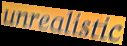
unrealistic